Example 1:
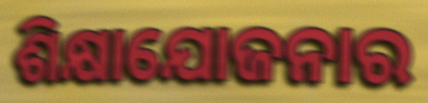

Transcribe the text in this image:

ଶିକ୍ଷାଯୋଜନାର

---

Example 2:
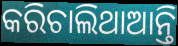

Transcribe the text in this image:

କରିଚାଲିଥାଆନ୍ତି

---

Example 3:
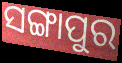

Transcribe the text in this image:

ସଙ୍ଗାପୁର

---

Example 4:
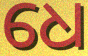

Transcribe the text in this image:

ଧେ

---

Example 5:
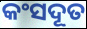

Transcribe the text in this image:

କଂସଦୂତ